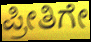
ಪ್ರೀತಿಗೇ